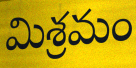
మిశ్రమం